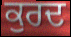
ਕੁਰਦ